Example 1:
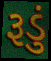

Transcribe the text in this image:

રૂડું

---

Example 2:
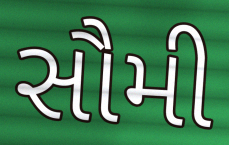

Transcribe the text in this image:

સૌમી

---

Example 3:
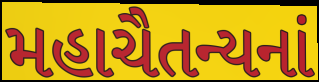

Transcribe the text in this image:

મહાચૈતન્યનાં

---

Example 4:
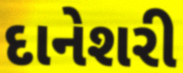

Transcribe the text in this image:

દાનેશરી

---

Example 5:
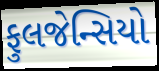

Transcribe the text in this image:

ફુલજેન્સિયો